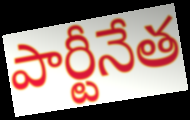
పార్టీనేత